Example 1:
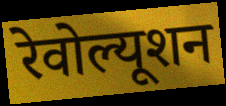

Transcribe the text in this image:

रेवोल्यूशन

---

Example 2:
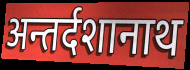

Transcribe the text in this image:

अन्तर्दशानाथ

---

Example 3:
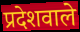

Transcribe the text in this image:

प्रदेशवाले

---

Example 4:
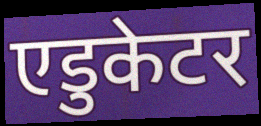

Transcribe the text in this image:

एडुकेटर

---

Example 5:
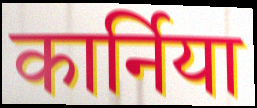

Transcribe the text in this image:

कार्निया